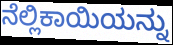
ನೆಲ್ಲಿಕಾಯಿಯನ್ನು